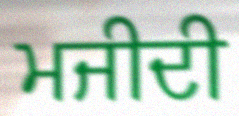
ਮਜੀਦੀ